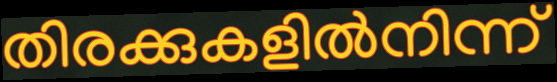
തിരക്കുകളിൽനിന്ന്